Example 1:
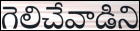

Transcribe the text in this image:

గెలిచేవాడిని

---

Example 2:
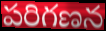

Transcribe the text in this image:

పరిగణన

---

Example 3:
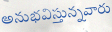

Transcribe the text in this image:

అనుభవిస్తున్నవారు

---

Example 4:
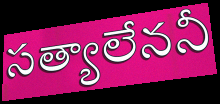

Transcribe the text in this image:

సత్యాలేననీ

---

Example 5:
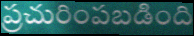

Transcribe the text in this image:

ప్రచురింపబడింది